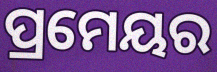
ପ୍ରମେୟର